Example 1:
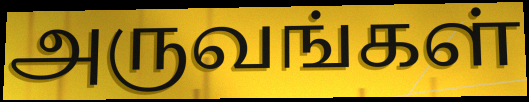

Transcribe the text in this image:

அருவங்கள்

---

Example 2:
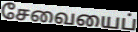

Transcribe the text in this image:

சேவையைப்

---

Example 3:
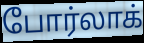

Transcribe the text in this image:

போர்லாக்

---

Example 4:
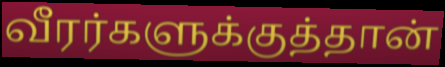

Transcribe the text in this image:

வீரர்களுக்குத்தான்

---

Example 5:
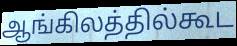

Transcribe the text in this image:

ஆங்கிலத்தில்கூட